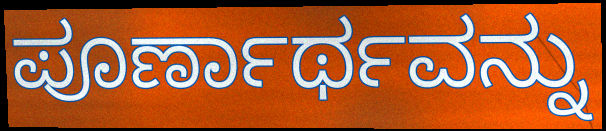
ಪೂರ್ಣಾರ್ಥವನ್ನು